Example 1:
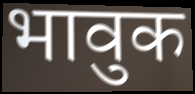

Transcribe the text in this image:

भावुक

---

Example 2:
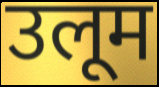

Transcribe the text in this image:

उलूम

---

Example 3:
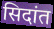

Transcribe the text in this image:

सिदांत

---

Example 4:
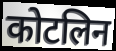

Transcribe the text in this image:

कोटलिन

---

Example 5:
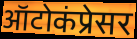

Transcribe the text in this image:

ऑटोकंप्रेसर